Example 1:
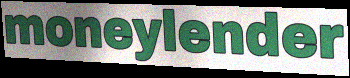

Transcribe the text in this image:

moneylender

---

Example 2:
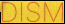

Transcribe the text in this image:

DISM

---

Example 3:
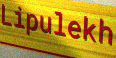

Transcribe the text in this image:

Lipulekh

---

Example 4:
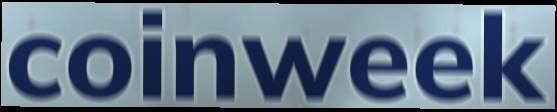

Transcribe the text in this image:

coinweek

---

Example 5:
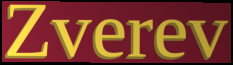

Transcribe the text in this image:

Zverev